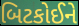
બિટકોઈને